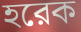
হরেক